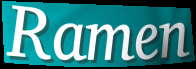
Ramen